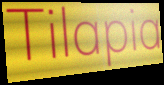
Tilapia